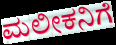
ಮಲೀಕನಿಗೆ